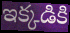
ఇక్కడికి